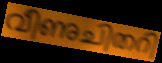
വീണുചിതറി